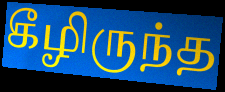
கீழிருந்த